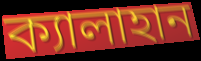
ক্যালাহান